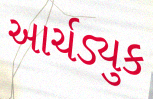
આર્ચડ્યુક